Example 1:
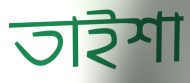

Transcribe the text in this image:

তাইশা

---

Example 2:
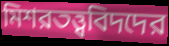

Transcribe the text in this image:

মিশরতত্ত্ববিদদের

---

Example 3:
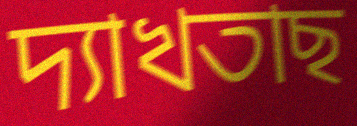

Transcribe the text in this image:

দ্যাখতাছ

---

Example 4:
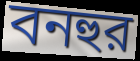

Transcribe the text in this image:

বনহুর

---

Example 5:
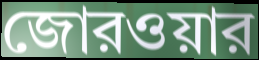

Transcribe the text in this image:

জোরওয়ার